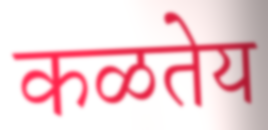
कळतेय